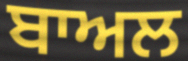
ਬਾਅਲ